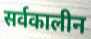
सर्वकालीन